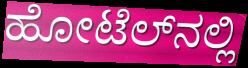
ಹೋಟೆಲ್‌ನಲ್ಲಿ